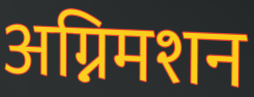
अग्निमशन